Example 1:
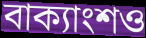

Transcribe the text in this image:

বাক্যাংশও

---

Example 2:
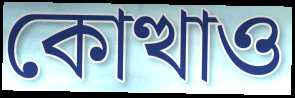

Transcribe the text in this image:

কোত্থাও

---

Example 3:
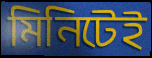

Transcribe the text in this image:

মিনিটেই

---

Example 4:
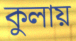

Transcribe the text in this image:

কুলায়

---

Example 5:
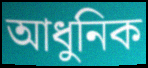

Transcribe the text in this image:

আধুনিক